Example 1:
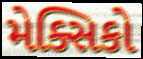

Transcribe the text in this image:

મેક્સિકો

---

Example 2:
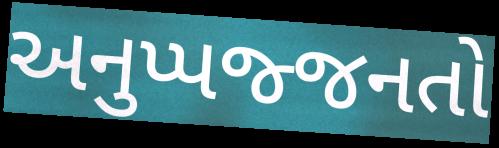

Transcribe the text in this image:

અનુપ્પજ્જનતો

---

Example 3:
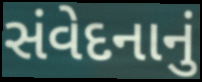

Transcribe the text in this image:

સંવેદનાનું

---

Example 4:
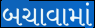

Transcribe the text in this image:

બચાવામાં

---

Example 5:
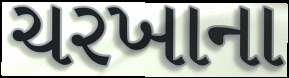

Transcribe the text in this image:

ચરખાના